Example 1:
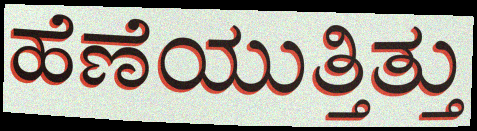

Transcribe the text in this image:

ಹೆಣೆಯುತ್ತಿತ್ತು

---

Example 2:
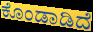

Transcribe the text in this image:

ಕೊಂಡಾಡಿದೆ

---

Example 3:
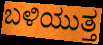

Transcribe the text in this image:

ಬಳಿಯುತ್ತ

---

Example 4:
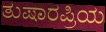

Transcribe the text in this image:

ತುಷಾರಪ್ರಿಯ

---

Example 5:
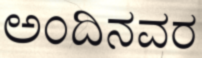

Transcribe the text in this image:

ಅಂದಿನವರ